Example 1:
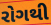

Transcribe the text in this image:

રોગથી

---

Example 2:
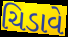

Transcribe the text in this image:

ચિડાવે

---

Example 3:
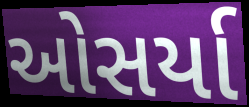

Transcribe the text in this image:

ઓસર્યા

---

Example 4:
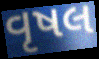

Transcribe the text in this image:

વૃષલ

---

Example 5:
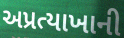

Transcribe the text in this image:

અપ્રત્યાખાની